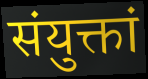
संयुक्तां